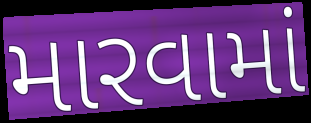
મારવામાં